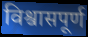
विश्वासपूर्ण